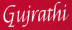
Gujrathi